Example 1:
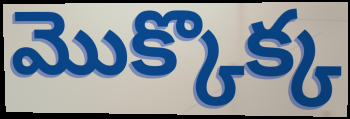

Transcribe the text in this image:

మొక్కొక్క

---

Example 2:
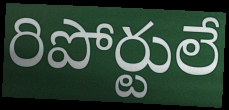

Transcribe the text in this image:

రిపోర్టులే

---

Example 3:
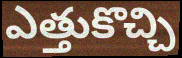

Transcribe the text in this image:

ఎత్తుకొచ్చి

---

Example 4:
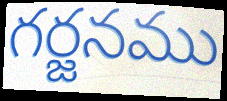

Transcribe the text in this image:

గర్జనము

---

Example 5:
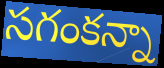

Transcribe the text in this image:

సగంకన్నా